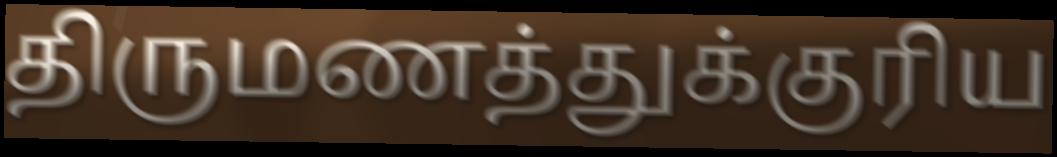
திருமணத்துக்குரிய